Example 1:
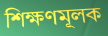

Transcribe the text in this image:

শিক্ষণমূলক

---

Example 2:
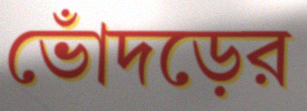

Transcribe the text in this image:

ভোঁদড়ের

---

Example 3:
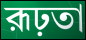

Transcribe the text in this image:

রূঢ়তা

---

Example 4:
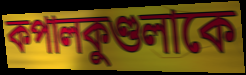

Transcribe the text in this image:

কপালকুণ্ডলাকে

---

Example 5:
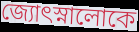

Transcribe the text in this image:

জ্যোৎস্নালোকে